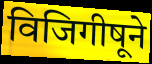
विजिगीषूने